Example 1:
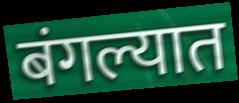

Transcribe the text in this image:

बंगल्यात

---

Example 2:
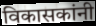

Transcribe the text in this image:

विकासकांनी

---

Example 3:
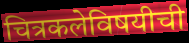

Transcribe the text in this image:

चित्रकलेविषयीची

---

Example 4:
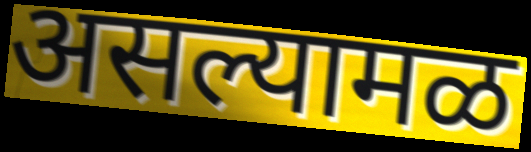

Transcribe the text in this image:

असल्यामळ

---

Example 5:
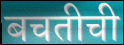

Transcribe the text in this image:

बचतीची